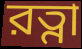
রত্না